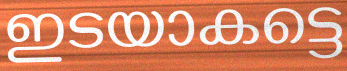
ഇടയാകട്ടെ